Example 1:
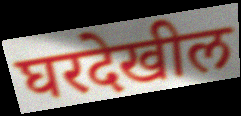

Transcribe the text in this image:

घरदेखील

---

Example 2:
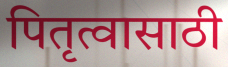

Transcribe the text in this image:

पितृत्वासाठी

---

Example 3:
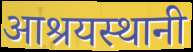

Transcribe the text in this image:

आश्रयस्थानी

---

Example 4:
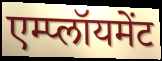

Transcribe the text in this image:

एम्प्लॉयमेंट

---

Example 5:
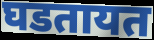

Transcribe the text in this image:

घडतायत